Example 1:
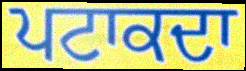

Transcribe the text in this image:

ਪਟਾਕਦਾ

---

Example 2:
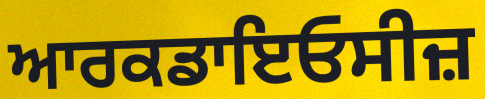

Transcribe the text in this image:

ਆਰਕਡਾਇਓਸੀਜ਼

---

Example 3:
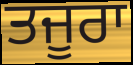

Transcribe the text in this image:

ਤਜੂਰਾ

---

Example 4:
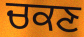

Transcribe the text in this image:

ਚਕਣ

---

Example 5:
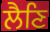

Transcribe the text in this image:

ਲੈਣਿ